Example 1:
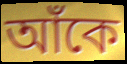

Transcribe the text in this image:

আঁকে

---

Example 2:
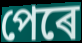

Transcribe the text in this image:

পেৰে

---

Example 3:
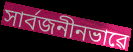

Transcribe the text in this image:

সাৰ্বজনীনভাৱে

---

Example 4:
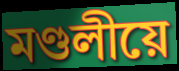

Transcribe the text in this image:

মণ্ডলীয়ে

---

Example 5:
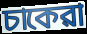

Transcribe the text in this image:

চাকেৱা